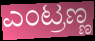
ಎಂಟ್ರಣ್ಣ